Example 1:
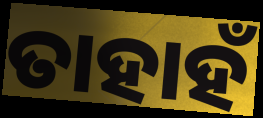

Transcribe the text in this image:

ତାହାହଁ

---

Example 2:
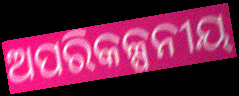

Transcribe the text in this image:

ଅପରିକଳ୍ପନୀୟ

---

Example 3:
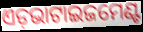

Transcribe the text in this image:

ଏଡ଼ଭାଟାଇଜମେଣ୍ଟ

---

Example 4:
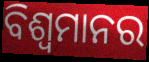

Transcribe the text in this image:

ବିଶ୍ୱମାନର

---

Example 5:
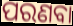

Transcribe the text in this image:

ପରଣବା